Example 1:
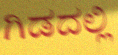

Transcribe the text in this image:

ಗಿಡದಲ್ಲಿ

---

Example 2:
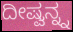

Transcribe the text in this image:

ದೀಷ್ವನ್ನ್ನ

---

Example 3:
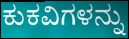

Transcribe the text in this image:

ಕುಕವಿಗಳನ್ನು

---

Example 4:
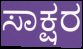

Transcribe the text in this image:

ಸಾಕ್ಷರ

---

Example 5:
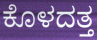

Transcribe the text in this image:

ಕೊಳದತ್ತ